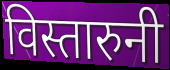
विस्तारुनी